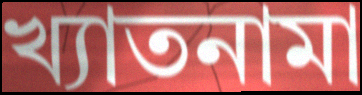
খ্যাতনামা